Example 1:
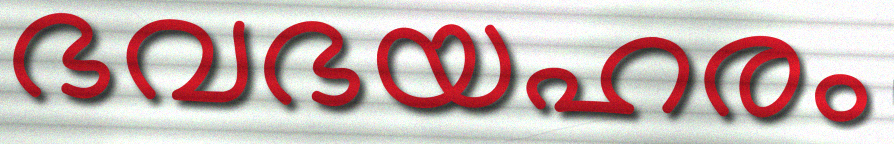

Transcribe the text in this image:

ഭവഭയഹരം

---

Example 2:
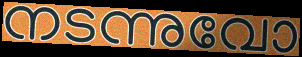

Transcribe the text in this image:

നടന്നുവോ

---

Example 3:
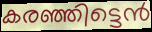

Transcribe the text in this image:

കരഞ്ഞിട്ടെൻ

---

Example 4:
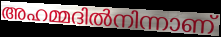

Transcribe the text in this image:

അഹമ്മദിൽനിന്നാണ്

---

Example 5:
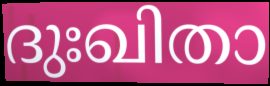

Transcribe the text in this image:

ദുഃഖിതാ